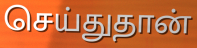
செய்துதான்